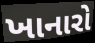
ખાનારો